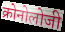
क्रोनोलोजी